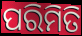
ପରିମିତି